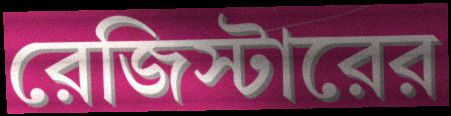
রেজিস্টারের